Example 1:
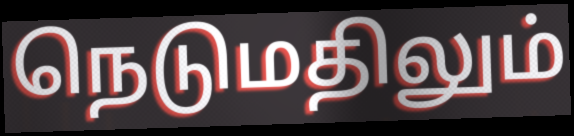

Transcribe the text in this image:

நெடுமதிலும்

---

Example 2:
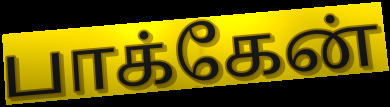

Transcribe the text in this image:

பாக்கேன்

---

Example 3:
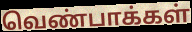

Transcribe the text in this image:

வெண்பாக்கள்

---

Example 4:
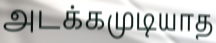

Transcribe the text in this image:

அடக்கமுடியாத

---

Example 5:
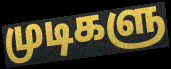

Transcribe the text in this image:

முடிகளு